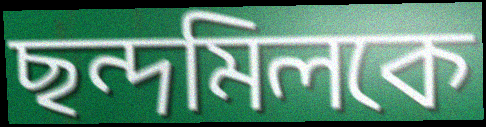
ছন্দমিলকে